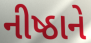
નીષ્ઠાને